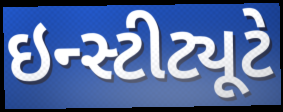
ઇન્સ્ટીટ્યૂટે